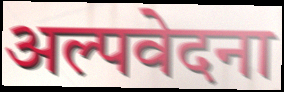
अल्पवेदना